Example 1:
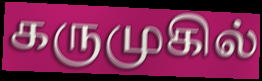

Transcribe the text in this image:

கருமுகில்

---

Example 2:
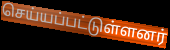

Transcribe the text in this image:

செய்யப்பட்டுள்ளனர்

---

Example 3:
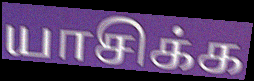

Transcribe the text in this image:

யாசிக்க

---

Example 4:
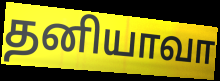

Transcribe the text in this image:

தனியாவா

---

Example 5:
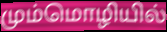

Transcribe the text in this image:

மும்மொழியில்